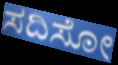
ಸದಿಸೋ